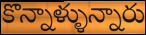
కొన్నాళ్ళున్నారు